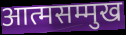
आत्मसम्मुख